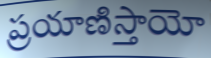
ప్రయాణిస్తాయో